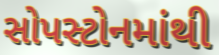
સોપસ્ટોનમાંથી